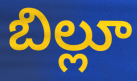
బిల్లూ